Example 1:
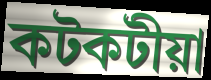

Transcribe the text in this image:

কটকটীয়া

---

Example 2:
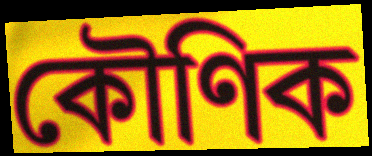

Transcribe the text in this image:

কৌণিক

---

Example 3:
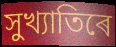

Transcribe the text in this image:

সুখ্যাতিৰে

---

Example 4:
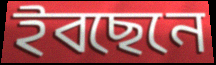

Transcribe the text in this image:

ইবছেনে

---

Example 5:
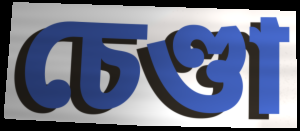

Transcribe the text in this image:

চেণ্ডা